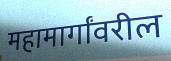
महामार्गांवरील